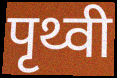
पृथ्‍वी